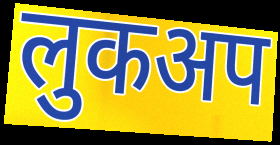
लुकअप